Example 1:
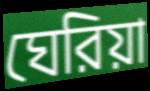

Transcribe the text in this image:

ঘেরিয়া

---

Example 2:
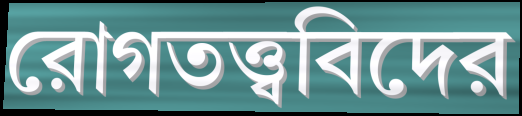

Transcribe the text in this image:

রোগতত্ত্ববিদের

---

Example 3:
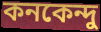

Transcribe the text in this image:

কনকেন্দু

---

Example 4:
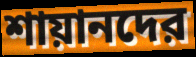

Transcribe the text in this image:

শায়ানদের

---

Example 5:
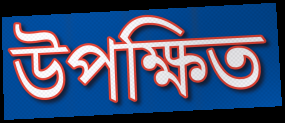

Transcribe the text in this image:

উপক্ষিত